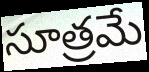
సూత్రమే